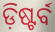
ଡ଼ିଷ୍ଟର୍ବ